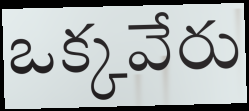
ఒక్కవేరు